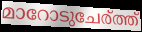
മാറോടുചേര്ത്ത്